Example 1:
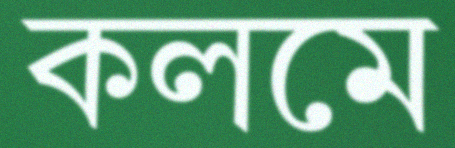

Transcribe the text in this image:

কলমে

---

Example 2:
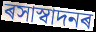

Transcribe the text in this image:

ৰসাস্বাদনৰ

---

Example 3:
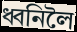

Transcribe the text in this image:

ধ্বনিলৈ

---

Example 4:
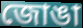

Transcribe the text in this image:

জোঙা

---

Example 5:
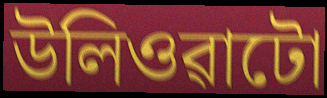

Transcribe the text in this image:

উলিওৱাটো